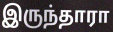
இருந்தாரா